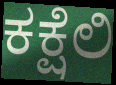
ಕಕ್ಷೆಲಿ